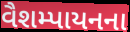
વૈશમ્પાયનના